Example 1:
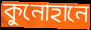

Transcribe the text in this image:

কুনোহানে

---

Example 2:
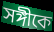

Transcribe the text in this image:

সঙ্গীকে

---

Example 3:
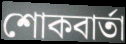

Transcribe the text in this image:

শোকবার্তা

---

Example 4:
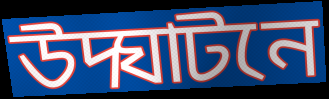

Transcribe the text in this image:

উদ্ঘাটনে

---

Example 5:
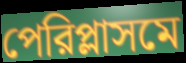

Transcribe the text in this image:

পেরিপ্লাসমে